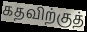
கதவிற்குத்